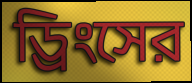
ড্রিংসের